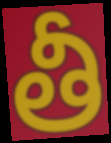
తీ